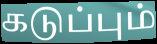
கடுப்பும்